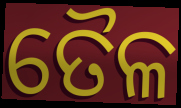
ତୈଳ